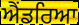
ਐਂਡਰਿਆ